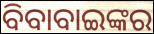
ବିବାବାଇଙ୍କର